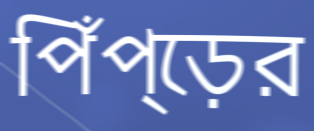
পিঁপ্‌ড়ের